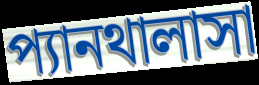
প্যানথালাসা